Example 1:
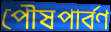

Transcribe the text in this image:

পৌষপার্বণ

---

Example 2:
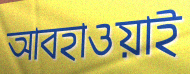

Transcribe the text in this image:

আবহাওয়াই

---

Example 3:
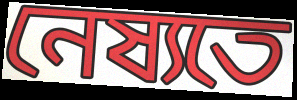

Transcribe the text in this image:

নেষ্যতে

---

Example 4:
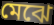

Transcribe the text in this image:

মেঝে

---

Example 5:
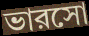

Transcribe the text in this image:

ভারসো